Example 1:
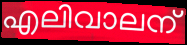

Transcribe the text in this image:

എലിവാലന്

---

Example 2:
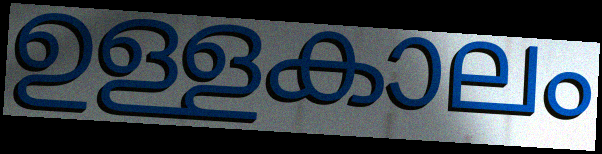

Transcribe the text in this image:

ഉള്ളകാലം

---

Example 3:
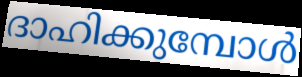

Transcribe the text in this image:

ദാഹിക്കുമ്പോൾ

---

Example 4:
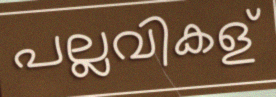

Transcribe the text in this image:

പല്ലവികള്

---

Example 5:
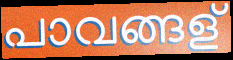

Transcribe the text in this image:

പാവങ്ങള്